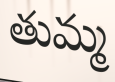
తుమ్మ